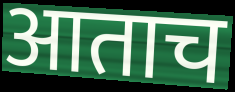
आताच